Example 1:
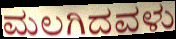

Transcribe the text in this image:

ಮಲಗಿದವಳು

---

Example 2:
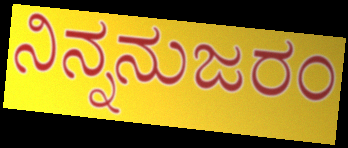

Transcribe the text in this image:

ನಿನ್ನನುಜರಂ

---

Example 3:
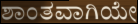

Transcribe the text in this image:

ಶಾಂತವಾಗಿಯೇ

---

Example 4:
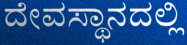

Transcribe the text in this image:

ದೇವಸ್ಥಾನದಲ್ಲಿ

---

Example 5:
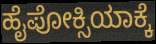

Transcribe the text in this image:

ಹೈಪೋಕ್ಸಿಯಾಕ್ಕೆ